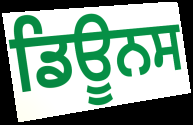
ਡਿਊਨਸ